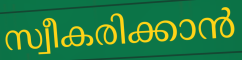
സ്വീകരിക്കാൻ